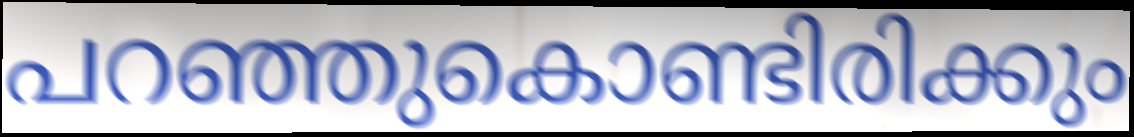
പറഞ്ഞുകൊണ്ടിരിക്കും